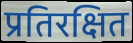
प्रतिरक्षित